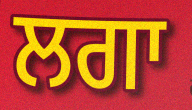
ਲਗਾ